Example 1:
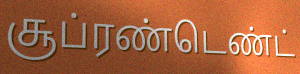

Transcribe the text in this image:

சூப்ரண்டெண்ட்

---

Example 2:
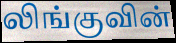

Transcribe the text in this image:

லிங்குவின்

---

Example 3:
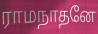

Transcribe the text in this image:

ராமநாதனே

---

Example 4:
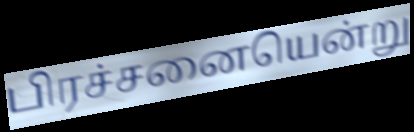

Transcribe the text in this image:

பிரச்சனையென்று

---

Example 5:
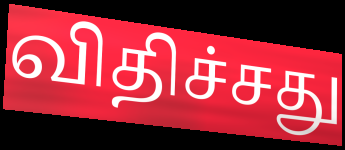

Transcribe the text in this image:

விதிச்சது